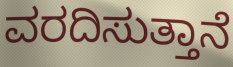
ವರದಿಸುತ್ತಾನೆ